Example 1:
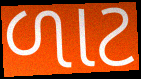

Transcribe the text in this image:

ળાટ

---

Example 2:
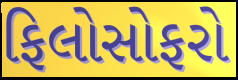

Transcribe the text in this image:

ફિલોસોફરો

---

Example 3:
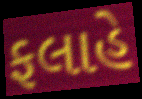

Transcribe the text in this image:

ફલાહે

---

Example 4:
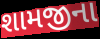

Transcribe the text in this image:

શામજીના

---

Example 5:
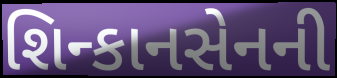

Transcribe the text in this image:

શિન્કાનસેનની